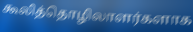
கூலித்தொழிலாளர்களாக